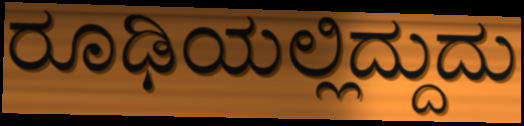
ರೂಢಿಯಲ್ಲಿದ್ದುದು